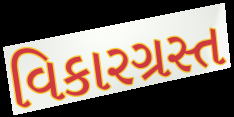
વિકારગ્રસ્ત